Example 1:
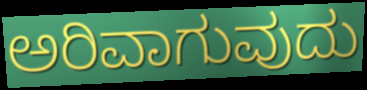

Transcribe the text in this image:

ಅರಿವಾಗುವುದು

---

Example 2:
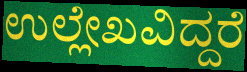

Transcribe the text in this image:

ಉಲ್ಲೇಖವಿದ್ದರೆ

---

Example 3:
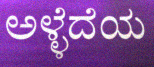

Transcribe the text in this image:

ಅಳ್ಳೆದೆಯ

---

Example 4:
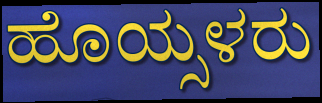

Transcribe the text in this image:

ಹೊಯ್ಸಳರು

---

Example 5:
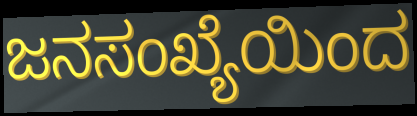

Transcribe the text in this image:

ಜನಸಂಖ್ಯೆಯಿಂದ